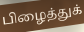
பிழைத்துக்